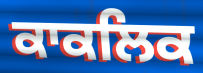
ਕਾਕਲਿਕ